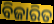
ବିଜାରିତ